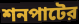
শনপাটের